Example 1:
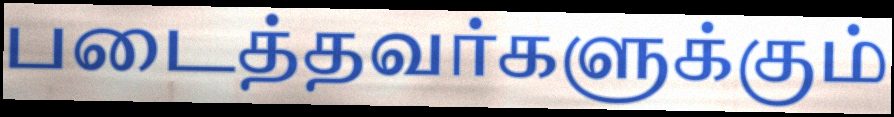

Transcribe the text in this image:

படைத்தவர்களுக்கும்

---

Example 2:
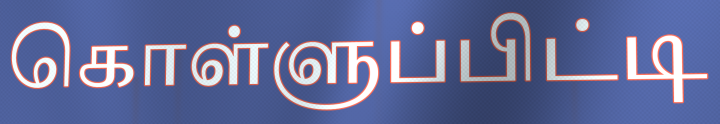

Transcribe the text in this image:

கொள்ளுப்பிட்டி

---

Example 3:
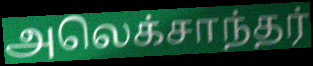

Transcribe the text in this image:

அலெக்சாந்தர்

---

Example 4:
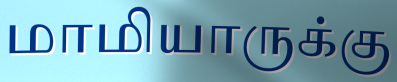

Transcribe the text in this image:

மாமியாருக்கு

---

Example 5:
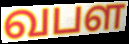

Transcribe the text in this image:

வபள